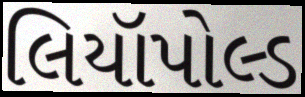
લિયૉપોલ્ડ